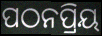
ପଠନପ୍ରିୟ